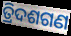
ତ୍ରିଦଶଗଣ